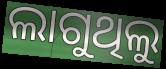
ଲାଗୁଥିଲୁ